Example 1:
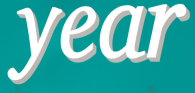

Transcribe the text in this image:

year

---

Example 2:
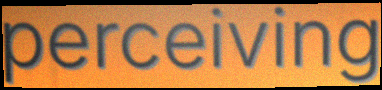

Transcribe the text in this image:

perceiving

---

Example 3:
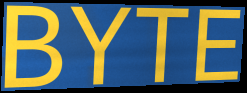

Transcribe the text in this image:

BYTE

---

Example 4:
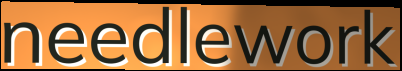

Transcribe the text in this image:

needlework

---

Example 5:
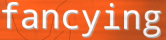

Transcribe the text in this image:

fancying